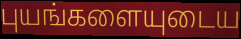
புயங்களையுடைய